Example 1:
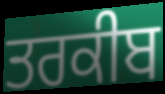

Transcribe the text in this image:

ਤਰਕੀਬ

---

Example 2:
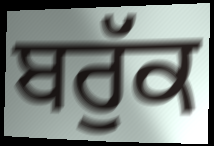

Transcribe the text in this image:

ਬਰੁੱਕ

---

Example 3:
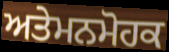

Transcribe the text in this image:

ਅਤੇਮਨਮੋਹਕ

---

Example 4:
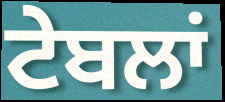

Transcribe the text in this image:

ਟੇਬਲਾਂ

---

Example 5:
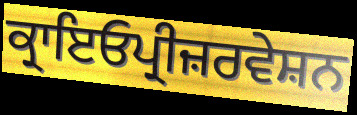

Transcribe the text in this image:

ਕ੍ਰਾਇਓਪ੍ਰੀਜ਼ਰਵੇਸ਼ਨ